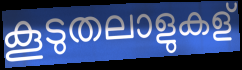
കൂടുതലാളുകള്